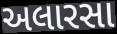
અલારસા